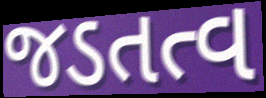
જડતત્વ